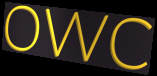
OWC